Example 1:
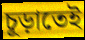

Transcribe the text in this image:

চূড়াতেই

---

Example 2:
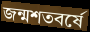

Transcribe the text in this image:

জন্মশতবর্ষে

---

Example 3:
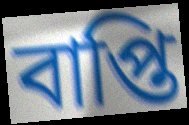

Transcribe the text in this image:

বাপ্তি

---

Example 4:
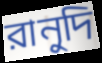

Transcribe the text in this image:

রানুদি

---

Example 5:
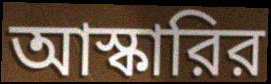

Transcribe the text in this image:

আস্কারির